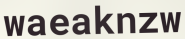
waeaknzw